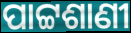
ପାଟ୍ଟଶାଣୀ